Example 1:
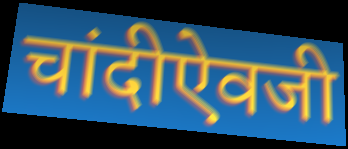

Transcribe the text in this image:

चांदीऐवजी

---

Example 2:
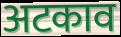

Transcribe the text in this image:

अटकाव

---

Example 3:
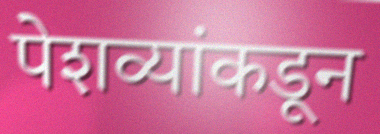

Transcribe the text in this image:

पेशव्यांकडून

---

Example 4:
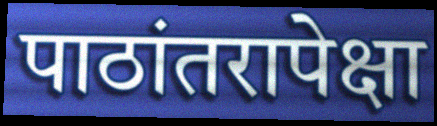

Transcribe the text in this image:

पाठांतरापेक्षा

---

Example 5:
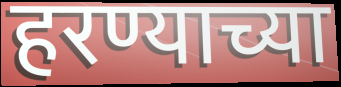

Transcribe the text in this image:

हरण्याच्या